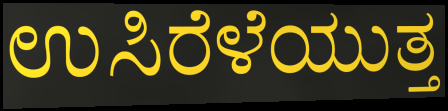
ಉಸಿರೆಳೆಯುತ್ತ